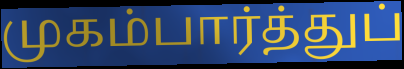
முகம்பார்த்துப்